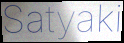
Satyaki